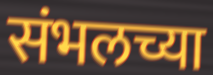
संभलच्या